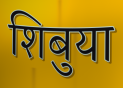
शिबुया